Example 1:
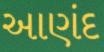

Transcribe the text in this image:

આણંદ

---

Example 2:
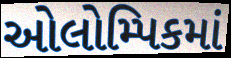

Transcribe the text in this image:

ઓલોમ્પિકમાં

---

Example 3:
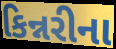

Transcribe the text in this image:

કિન્નરીના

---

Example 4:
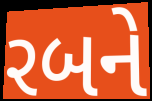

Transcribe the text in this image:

રબને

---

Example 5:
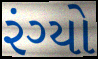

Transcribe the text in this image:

રંગ્યો